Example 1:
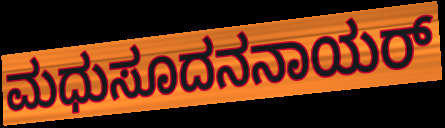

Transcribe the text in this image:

ಮಧುಸೂದನನಾಯರ್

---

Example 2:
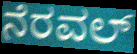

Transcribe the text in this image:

ನೆರವಲ್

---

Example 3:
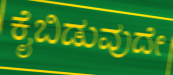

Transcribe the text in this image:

ಕೈಬಿಡುವುದೇ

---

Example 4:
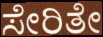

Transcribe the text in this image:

ಸೇರಿತೇ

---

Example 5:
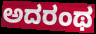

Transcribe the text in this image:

ಅದರಂಥ